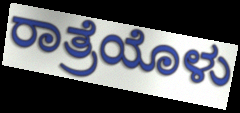
ರಾತ್ರೆಯೊಳು